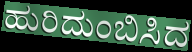
ಹುರಿದುಂಬಿಸಿದ